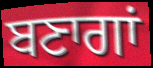
ਬਣਾਗਾਂ